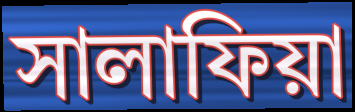
সালাফিয়া